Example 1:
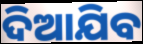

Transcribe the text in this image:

ଦିଆଯିବ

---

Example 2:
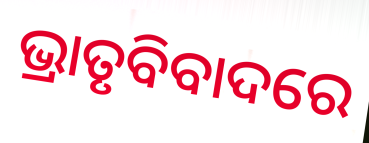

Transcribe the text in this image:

ଭ୍ରାତୃବିବାଦରେ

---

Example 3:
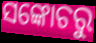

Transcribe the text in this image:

ସଙ୍କୋଚରୁ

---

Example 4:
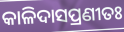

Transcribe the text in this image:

କାଳିଦାସପ୍ରଣୀତଃ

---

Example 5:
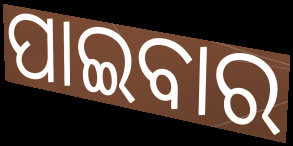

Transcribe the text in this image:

ପାଇବାର